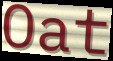
Oat